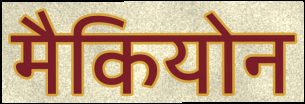
मैकियोन